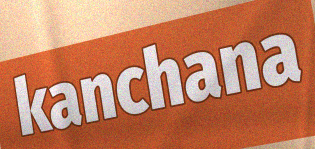
kanchana